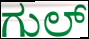
ಗುಲ್